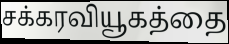
சக்கரவியூகத்தை